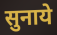
सुनाये